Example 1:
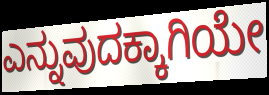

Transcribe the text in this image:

ಎನ್ನುವುದಕ್ಕಾಗಿಯೇ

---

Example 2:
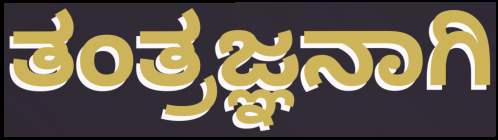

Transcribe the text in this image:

ತಂತ್ರಜ್ಞನಾಗಿ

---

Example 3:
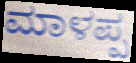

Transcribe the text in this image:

ಮಾಳಪ್ಪ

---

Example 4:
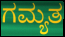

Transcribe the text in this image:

ಗಮ್ಯತ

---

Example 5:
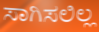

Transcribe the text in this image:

ಸಾಗಿಸಲಿಲ್ಲ